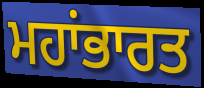
ਮਹਾਂਭਾਰਤ